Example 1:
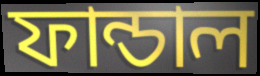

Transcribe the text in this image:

ফান্ডাল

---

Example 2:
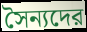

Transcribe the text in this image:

সৈন্যদের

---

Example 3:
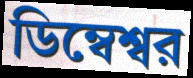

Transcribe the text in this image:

ডিম্বেশ্বর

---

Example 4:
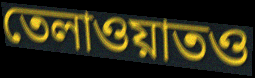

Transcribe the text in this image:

তেলাওয়াতও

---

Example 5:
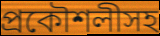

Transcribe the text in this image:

প্রকৌশলীসহ